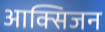
आक्सिजन